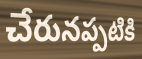
చేరునప్పటికి